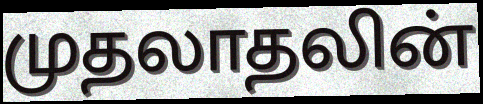
முதலாதலின்